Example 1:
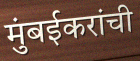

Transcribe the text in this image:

मुंबईकरांची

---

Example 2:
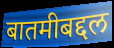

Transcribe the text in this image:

बातमीबद्दल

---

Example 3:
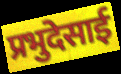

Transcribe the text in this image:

प्रभुदेसाई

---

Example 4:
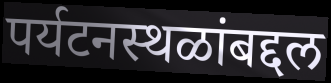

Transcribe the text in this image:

पर्यटनस्थळांबद्दल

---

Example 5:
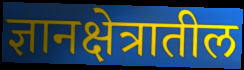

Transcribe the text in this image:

ज्ञानक्षेत्रातील